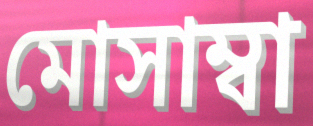
মোসাম্বা